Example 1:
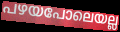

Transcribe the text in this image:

പഴയപോലെയല്ല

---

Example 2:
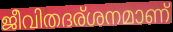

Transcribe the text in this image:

ജീവിതദര്ശനമാണ്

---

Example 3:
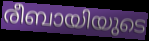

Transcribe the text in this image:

രീബായിയുടെ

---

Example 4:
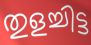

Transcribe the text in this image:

തുളച്ചിട്ട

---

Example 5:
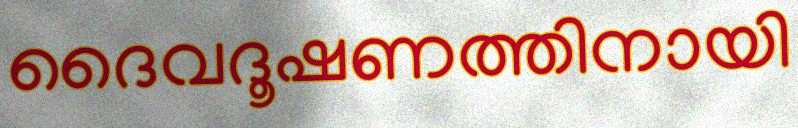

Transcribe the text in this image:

ദൈവദൂഷണത്തിനായി